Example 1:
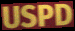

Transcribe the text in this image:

USPD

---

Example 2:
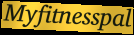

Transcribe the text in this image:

Myfitnesspal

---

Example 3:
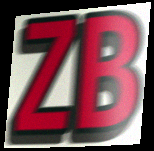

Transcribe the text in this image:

ZB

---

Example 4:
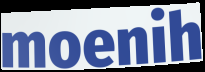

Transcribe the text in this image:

moenih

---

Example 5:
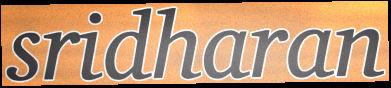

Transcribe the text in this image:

sridharan